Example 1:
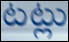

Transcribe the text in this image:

టట్లు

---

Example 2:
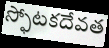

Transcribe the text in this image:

స్ఫోటకదేవత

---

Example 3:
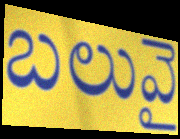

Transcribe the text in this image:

బలువై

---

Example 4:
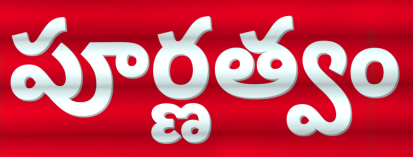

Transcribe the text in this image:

పూర్ణత్వం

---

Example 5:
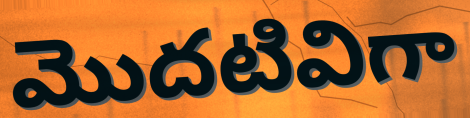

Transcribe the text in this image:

మొదటివిగా